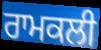
ਰਾਮਕਲੀ